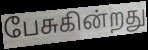
பேசுகின்றது